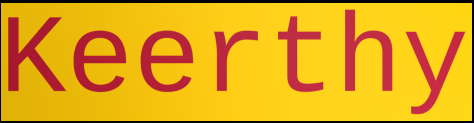
Keerthy